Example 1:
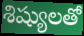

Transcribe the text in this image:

శిష్యులతో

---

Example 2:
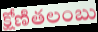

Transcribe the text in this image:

క్షోణితలంబు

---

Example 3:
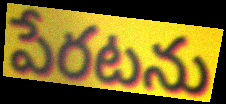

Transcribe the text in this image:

పేరటను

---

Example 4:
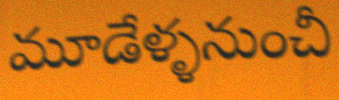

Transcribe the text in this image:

మూడేళ్ళనుంచీ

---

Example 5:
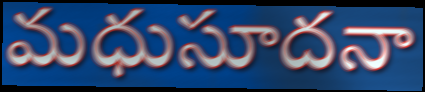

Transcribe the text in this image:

మధుసూదనా